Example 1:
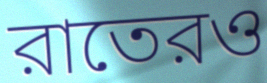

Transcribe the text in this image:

রাতেরও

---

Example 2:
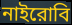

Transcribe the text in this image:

নাইরোবি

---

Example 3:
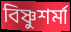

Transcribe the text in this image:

বিষ্ণুশর্মা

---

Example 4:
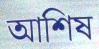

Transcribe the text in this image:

আশিষ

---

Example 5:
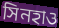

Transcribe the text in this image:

সিনহাও